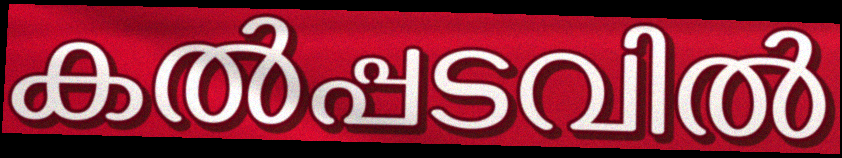
കൽപ്പടവിൽ